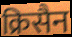
क्रिसैन